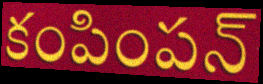
కంపింపన్